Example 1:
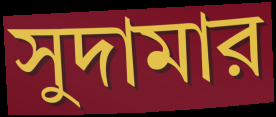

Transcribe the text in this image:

সুদামার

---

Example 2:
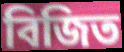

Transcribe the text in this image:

বিজিত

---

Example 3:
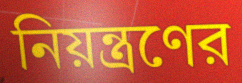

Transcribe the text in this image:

নিয়ন্ত্রণের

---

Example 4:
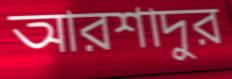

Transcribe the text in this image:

আরশাদুর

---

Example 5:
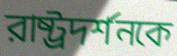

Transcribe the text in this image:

রাষ্ট্রদর্শনকে